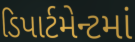
ડિપાર્ટમેન્ટમાં